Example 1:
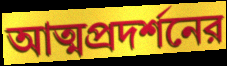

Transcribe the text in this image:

আত্মপ্রদর্শনের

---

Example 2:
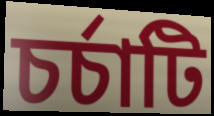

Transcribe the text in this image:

চর্চাটি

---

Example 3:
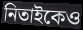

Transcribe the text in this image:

নিতাইকেও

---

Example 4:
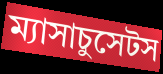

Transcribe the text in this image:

ম্যাসাচুসেটস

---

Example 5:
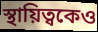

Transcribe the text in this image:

স্থায়িত্বকেও